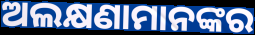
ଅଲକ୍ଷଣାମାନଙ୍କର